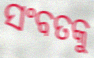
ସଂବତକୁ